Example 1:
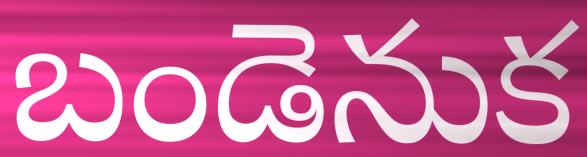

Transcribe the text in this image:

బండెనుక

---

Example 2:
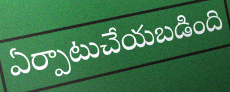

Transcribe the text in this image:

ఏర్పాటుచేయబడింది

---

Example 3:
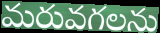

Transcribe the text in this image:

మరువగలను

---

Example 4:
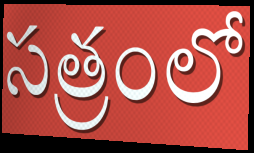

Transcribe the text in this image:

సత్రంలో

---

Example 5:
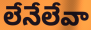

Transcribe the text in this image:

లేనేలేవా